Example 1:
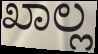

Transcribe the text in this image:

ಖಾಲ್ಲ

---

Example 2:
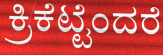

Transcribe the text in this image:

ಕ್ರಿಕೆಟ್ಟೆಂದರೆ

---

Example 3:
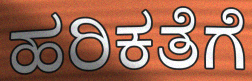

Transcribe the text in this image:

ಹರಿಕತೆಗೆ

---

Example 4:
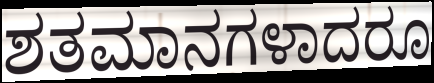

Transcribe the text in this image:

ಶತಮಾನಗಳಾದರೂ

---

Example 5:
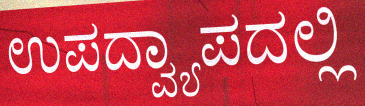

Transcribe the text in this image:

ಉಪದ್ವ್ಯಾಪದಲ್ಲಿ